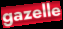
gazelle